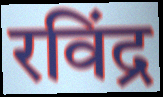
रविंद्र